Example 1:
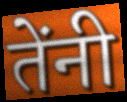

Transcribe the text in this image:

तेंनी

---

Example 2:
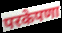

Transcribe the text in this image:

परकेपणा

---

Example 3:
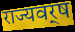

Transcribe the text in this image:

राज्यवर्ष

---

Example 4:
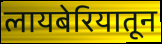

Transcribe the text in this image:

लायबेरियातून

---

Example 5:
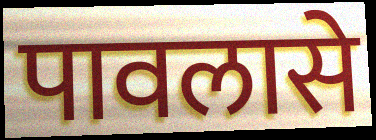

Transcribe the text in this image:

पावलासे